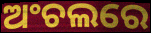
ଅଂଚଲରେ